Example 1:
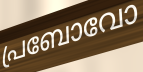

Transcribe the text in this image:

പ്രബോവോ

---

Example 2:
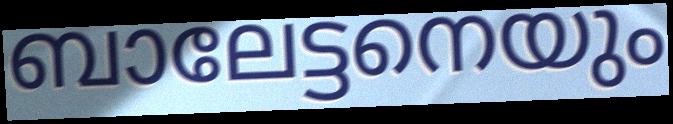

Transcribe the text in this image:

ബാലേട്ടനെയും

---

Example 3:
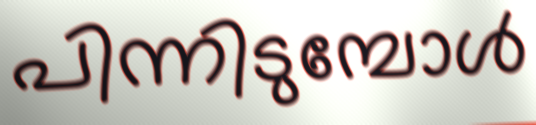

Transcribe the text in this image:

പിന്നിടുമ്പോൾ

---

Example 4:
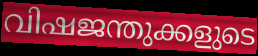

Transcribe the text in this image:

വിഷജന്തുക്കളുടെ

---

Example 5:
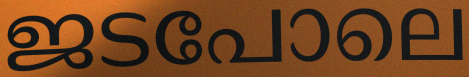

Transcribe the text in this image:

ജടപോലെ